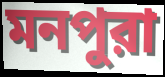
মনপুরা